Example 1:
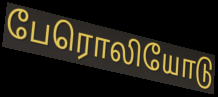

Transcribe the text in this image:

பேரொலியோடு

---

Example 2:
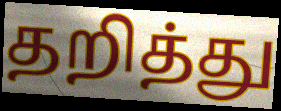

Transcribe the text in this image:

தறித்து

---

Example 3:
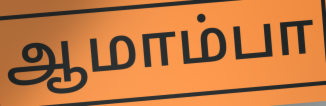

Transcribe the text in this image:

ஆமாம்பா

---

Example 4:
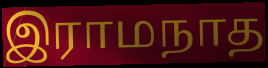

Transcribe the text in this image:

இராமநாத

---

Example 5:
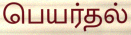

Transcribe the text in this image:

பெயர்தல்